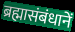
ब्रह्मासंबंधानें